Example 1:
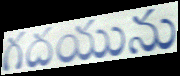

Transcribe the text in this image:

గదయును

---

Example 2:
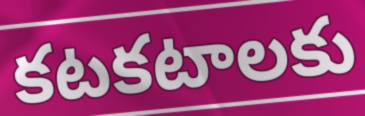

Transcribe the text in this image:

కటకటాలకు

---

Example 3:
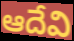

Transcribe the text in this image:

ఆదేవి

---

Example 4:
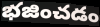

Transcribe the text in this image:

భజించడం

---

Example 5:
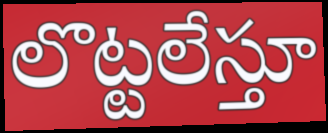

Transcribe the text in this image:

లొట్టలేస్తూ